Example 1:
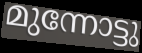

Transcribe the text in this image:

മുന്നോട്ടു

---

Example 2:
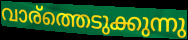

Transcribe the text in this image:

വാര്ത്തെടുക്കുന്നു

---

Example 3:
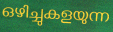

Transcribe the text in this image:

ഒഴിച്ചുകളയുന്ന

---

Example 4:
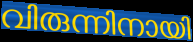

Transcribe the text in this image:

വിരുന്നിനായി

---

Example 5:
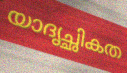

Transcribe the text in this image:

യാദൃച്ഛികത